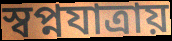
স্বপ্নযাত্রায়